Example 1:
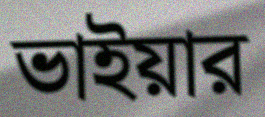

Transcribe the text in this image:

ভাইয়ার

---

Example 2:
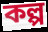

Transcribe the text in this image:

কল্প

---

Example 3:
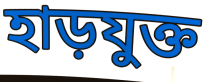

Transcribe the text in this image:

হাড়যুক্ত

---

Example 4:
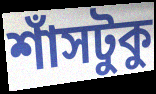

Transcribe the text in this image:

শাঁসটুকু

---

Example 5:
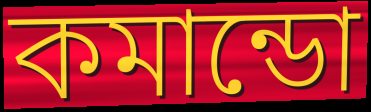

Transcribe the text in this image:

কমান্ডো